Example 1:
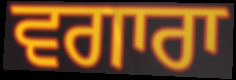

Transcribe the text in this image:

ਵਗਾਰਾ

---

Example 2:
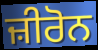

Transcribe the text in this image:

ਜ਼ੀਰੋਨ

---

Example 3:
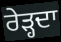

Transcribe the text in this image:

ਰੇੜ੍ਹਦਾ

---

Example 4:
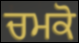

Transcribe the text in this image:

ਚਮਕੋ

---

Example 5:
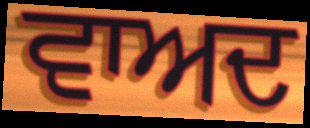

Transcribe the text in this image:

ਵਾਅਦ